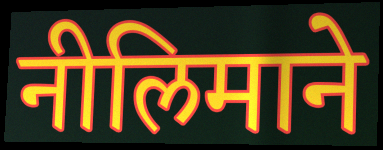
नीलिमाने